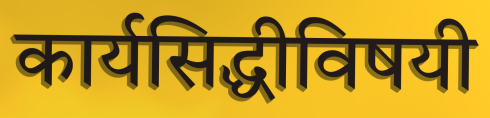
कार्यसिद्धीविषयी